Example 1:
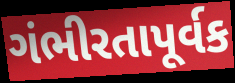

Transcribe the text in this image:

ગંભીરતાપૂર્વક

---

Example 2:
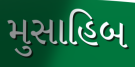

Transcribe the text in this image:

મુસાહિબ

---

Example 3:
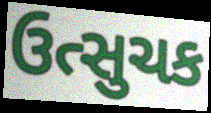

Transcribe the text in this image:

ઉત્સુચક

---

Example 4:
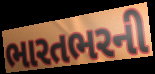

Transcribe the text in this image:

ભારતભરની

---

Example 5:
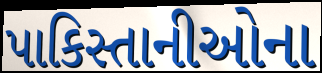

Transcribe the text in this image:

પાકિસ્તાનીઓના